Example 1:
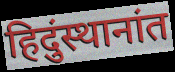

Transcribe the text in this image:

हिदुंस्थानांत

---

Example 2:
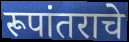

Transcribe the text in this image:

रूपांतराचे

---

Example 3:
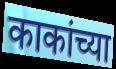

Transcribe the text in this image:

काकांच्या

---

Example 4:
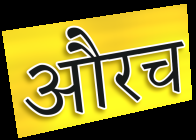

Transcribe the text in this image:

औरच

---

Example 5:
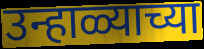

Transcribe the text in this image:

उन्हाळ्याच्या